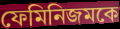
ফেমিনিজমকে